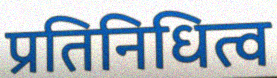
प्रतिनिधित्व